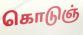
கொடுஞ்